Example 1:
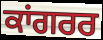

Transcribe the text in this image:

ਕਾਂਗਰਰ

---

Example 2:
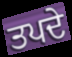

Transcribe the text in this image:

ਤਪਦੇ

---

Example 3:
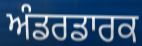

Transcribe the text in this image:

ਅੰਡਰਡਾਰਕ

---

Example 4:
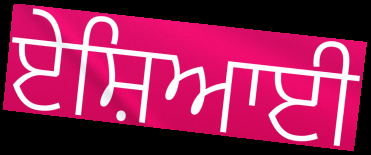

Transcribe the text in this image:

ਏਸ਼ਿਆਈ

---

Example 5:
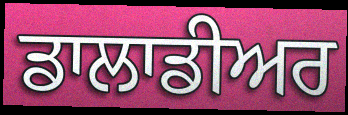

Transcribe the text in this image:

ਡਾਲਾਡੀਅਰ